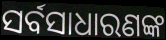
ସର୍ବସାଧାରଣଙ୍କ